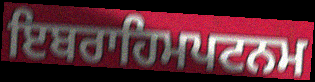
ਇਬਰਾਹਿਮਪਟਨਮ